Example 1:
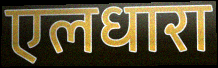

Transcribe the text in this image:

एलधारा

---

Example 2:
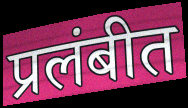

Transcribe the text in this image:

प्रलंबीत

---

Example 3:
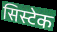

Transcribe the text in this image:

सिस्टेक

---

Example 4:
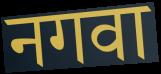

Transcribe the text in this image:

नगवा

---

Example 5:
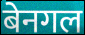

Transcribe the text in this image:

बेनगल